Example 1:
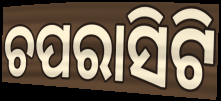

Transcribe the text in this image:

ଚପରାସିଟି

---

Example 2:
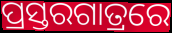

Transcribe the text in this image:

ପ୍ରସ୍ତରଗାତ୍ରରେ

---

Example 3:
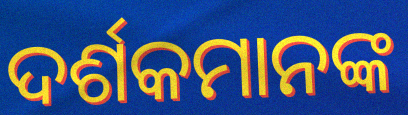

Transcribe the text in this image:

ଦର୍ଶକମାନଙ୍କ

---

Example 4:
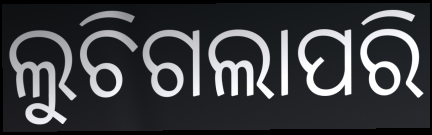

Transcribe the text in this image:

ଲୁଚିଗଲାପରି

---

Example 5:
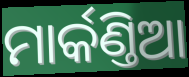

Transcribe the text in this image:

ମାର୍କଣ୍ତିଆ